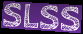
SLSS